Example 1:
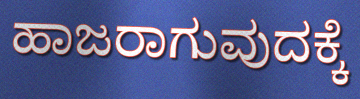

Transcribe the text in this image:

ಹಾಜರಾಗುವುದಕ್ಕೆ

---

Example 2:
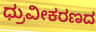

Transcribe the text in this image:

ಧ್ರುವೀಕರಣದ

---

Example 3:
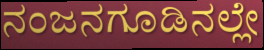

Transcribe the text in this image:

ನಂಜನಗೂಡಿನಲ್ಲೇ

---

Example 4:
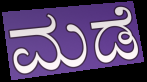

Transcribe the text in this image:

ಮಡೆ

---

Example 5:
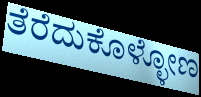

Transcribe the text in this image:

ತೆರೆದುಕೊಳ್ಳೋಣ